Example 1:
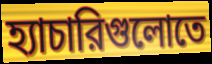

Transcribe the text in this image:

হ্যাচারিগুলোতে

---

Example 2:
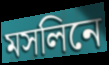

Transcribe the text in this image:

মসলিনে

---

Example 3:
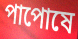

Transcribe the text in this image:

পাপোষে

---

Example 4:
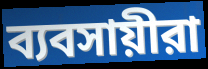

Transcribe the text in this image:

ব্যবসায়ীরা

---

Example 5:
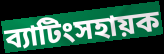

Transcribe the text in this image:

ব্যাটিংসহায়ক